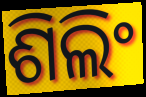
ଶିଲିଂ